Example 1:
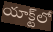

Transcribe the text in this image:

యాక్ట్‌లో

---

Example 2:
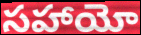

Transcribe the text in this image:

సహాయో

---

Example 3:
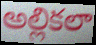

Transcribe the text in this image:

అల్లికలా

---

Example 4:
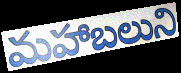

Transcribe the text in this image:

మహాబలుని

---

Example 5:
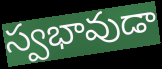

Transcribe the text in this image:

స్వభావుడా